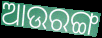
ଆଉରଙ୍ଗ